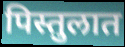
पिस्तुलात